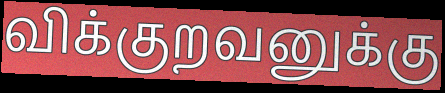
விக்குறவனுக்கு